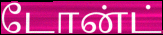
டோன்ட்